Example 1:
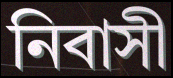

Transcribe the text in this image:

নিবাসী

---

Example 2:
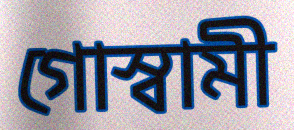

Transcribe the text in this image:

গোস্বামী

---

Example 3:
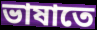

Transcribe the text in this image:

ভাষাতে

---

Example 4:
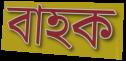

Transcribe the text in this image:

বাহক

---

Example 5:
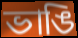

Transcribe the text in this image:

ভাঙি